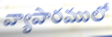
వ్యాపారములో